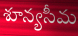
శూన్యసీమ